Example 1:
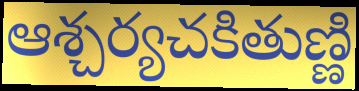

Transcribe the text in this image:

ఆశ్చర్యచకితుణ్ణి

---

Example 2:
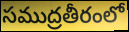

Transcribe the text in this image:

సముద్రతీరంలో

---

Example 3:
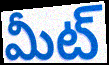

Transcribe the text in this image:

మీట్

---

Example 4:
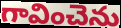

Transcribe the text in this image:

గావించెను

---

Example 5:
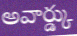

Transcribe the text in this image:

అవార్డ్కు